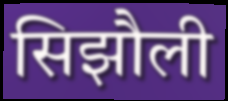
सिझौली